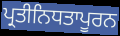
ਪ੍ਰਤੀਨਿਧਤਾਪੂਰਨ